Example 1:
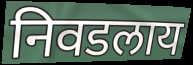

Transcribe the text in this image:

निवडलाय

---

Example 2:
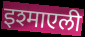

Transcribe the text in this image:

इश्माएली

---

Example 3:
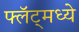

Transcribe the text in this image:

फ्लॅट्मध्ये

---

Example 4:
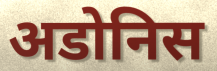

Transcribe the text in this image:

अडोनिस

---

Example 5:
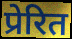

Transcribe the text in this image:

प्रेरित